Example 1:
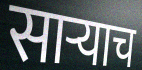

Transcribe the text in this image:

साऱ्याच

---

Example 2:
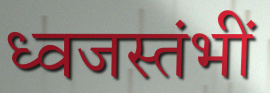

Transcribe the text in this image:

ध्वजस्तंभीं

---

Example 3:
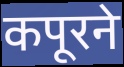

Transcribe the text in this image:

कपूरने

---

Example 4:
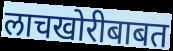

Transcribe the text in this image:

लाचखोरीबाबत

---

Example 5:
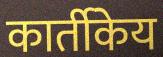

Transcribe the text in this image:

कार्तीकेय